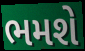
ભમશે